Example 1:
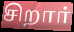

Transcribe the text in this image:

சிறார்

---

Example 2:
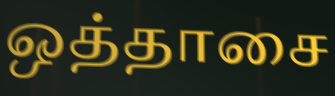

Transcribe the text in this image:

ஒத்தாசை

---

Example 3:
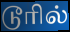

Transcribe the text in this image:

டூரில்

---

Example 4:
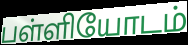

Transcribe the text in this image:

பள்ளியோடம்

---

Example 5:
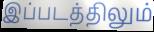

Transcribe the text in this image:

இப்படத்திலும்